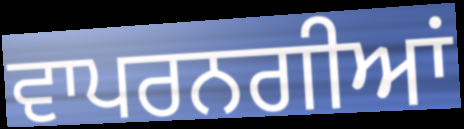
ਵਾਪਰਨਗੀਆਂ